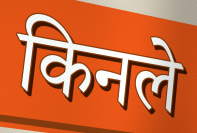
किनले